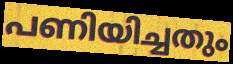
പണിയിച്ചതും